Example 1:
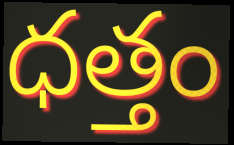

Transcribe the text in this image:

ధత్తం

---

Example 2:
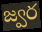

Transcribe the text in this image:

జ్వర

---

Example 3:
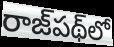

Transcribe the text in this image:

రాజ్‌పథ్‌లో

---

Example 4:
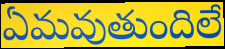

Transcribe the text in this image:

ఏమవుతుందిలే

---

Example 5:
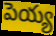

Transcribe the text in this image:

పెయ్య